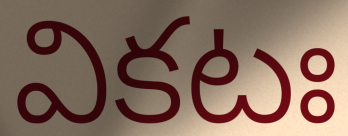
వికటః